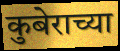
कुबेराच्या